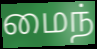
மைந்